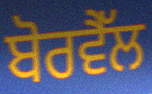
ਬੋਰਵੈੱਲ